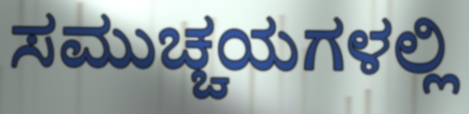
ಸಮುಚ್ಚಯಗಳಲ್ಲಿ